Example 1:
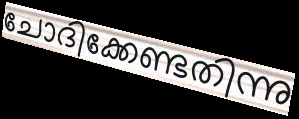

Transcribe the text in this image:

ചോദിക്കേണ്ടതിന്നു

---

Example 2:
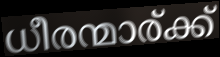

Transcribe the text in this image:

ധീരന്മാര്ക്ക്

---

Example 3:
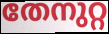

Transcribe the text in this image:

തേനുറ്റ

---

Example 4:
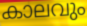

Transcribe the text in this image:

കാലവും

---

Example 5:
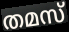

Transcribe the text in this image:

തമസ്